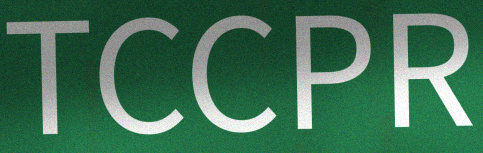
TCCPR